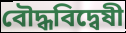
বৌদ্ধবিদ্বেষী